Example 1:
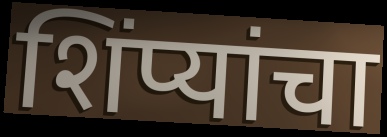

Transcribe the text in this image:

शिंप्यांचा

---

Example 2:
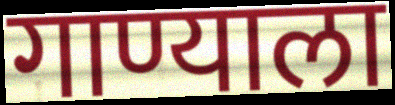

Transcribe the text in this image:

गाण्याला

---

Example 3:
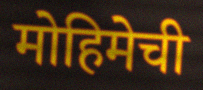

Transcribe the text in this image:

मोहिमेची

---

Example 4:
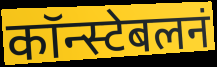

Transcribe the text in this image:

कॉन्स्टेबलनं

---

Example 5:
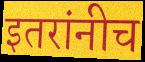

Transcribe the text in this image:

इतरांनीच